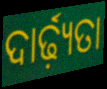
ଦାର୍ଢ଼୍ୟତା